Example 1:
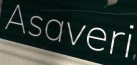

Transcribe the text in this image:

Asaveri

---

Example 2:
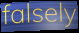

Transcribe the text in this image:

falsely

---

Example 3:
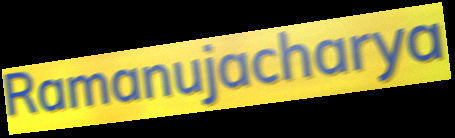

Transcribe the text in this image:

Ramanujacharya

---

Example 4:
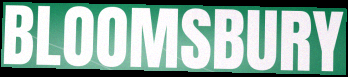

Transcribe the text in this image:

BLOOMSBURY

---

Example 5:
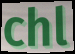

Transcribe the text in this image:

chl